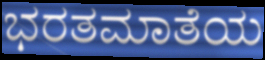
ಭರತಮಾತೆಯ